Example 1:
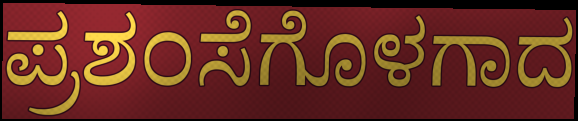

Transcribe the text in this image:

ಪ್ರಶಂಸೆಗೊಳಗಾದ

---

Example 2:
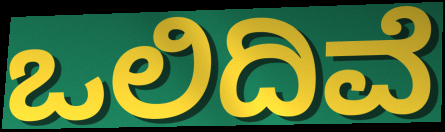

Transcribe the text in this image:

ಒಲಿದಿವೆ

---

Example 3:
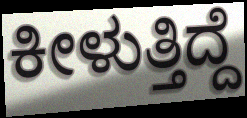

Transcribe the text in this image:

ಕೀಳುತ್ತಿದ್ದೆ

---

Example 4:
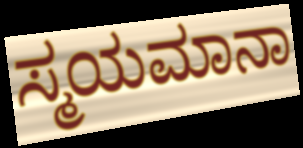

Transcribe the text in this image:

ಸ್ಮಯಮಾನಾ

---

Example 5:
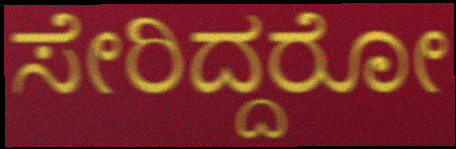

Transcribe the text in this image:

ಸೇರಿದ್ದರೋ